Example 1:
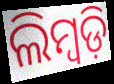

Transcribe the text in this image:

ଲିମ୍ବଡ଼ି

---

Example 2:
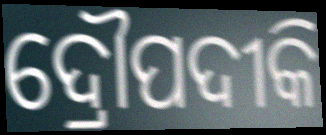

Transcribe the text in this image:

ଦ୍ରୌପଦୀକି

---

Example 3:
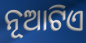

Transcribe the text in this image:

ନୂଆଟିଏ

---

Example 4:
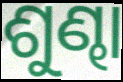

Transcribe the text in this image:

ଶୁଣ୍ଢା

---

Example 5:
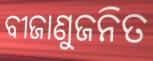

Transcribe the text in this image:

ବୀଜାଣୁଜନିତ